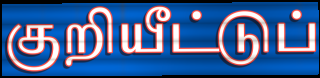
குறியீட்டுப்